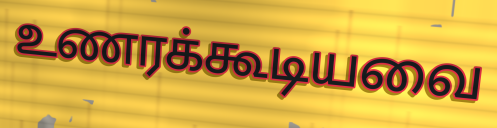
உணரக்கூடியவை